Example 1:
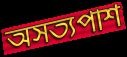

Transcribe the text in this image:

অসত্যপাশ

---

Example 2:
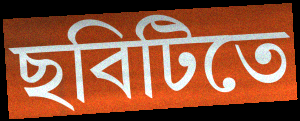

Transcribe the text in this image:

ছবিটিতে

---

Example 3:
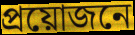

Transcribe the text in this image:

প্রয়োজনে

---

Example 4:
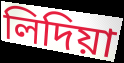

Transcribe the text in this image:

লিদিয়া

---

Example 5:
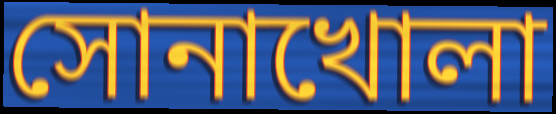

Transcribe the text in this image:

সোনাখোলা